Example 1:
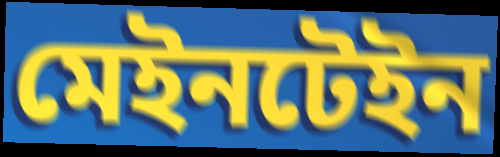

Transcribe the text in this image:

মেইনটেইন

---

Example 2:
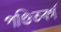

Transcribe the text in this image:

পণ্ডিতবর্গ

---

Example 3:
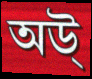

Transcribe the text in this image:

অউ্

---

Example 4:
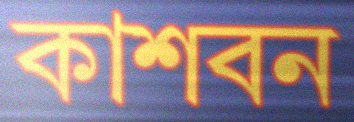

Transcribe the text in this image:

কাশবন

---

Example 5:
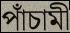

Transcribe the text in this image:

পাঁচামী